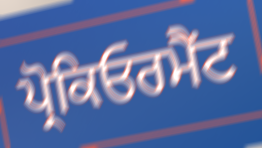
ਪ੍ਰੋਕਿਓਰਮੈਂਟ